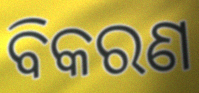
ବିକରଣ